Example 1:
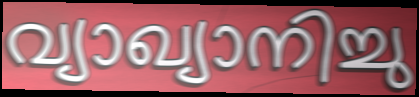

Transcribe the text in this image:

വ്യാഖ്യാനിച്ചു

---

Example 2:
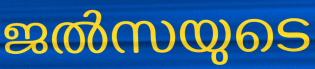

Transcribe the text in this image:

ജൽസയുടെ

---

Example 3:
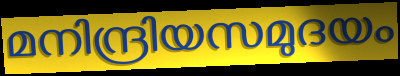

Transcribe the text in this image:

മനിന്ദ്രിയസമുദയം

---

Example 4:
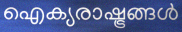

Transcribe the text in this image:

ഐക്യരാഷ്ട്രങ്ങൾ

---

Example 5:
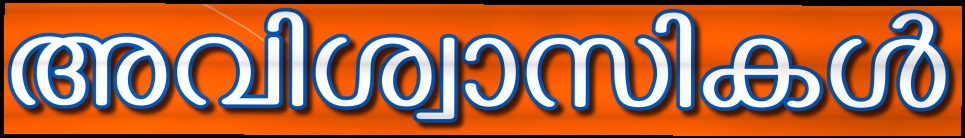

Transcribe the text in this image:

അവിശ്വാസികൾ